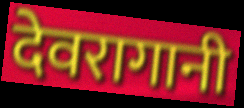
देवरागानी